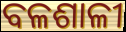
ବଳଶାଳୀ